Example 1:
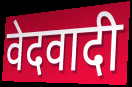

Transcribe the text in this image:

वेदवादी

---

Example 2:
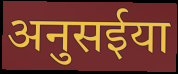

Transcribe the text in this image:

अनुसईया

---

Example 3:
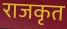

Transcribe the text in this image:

राजकृत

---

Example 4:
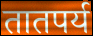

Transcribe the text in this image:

तातपर्य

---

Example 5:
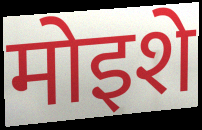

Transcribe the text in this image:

मोइशे